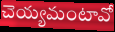
చెయ్యమంటావో